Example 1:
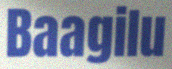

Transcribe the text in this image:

Baagilu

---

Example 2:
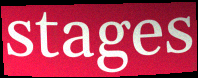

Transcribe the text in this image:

stages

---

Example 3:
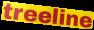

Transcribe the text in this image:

treeline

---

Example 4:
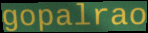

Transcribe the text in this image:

gopalrao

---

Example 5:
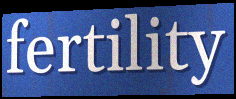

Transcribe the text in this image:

fertility